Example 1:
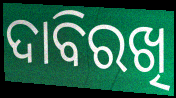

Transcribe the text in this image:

ଦାବିରଖି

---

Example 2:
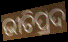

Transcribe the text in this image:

ଭୀତିପ୍ରଦ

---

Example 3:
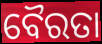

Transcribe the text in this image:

ବୈରତା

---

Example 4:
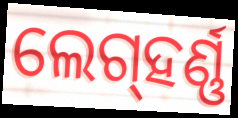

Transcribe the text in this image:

ଲେଗ୍‌ହର୍ଣ୍ଣ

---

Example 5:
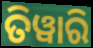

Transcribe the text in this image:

ତିୱାରି